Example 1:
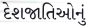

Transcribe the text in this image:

દેશજાતિઓનું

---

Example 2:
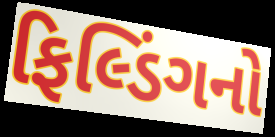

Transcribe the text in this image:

ફિલ્ડિંગનો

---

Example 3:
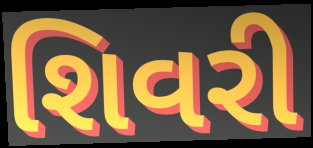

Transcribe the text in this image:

શિવરી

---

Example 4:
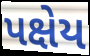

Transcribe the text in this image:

પક્ષેય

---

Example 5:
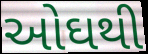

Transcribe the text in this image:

ઓઘથી